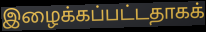
இழைக்கப்பட்டதாகக்